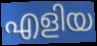
എളിയ